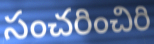
సంచరించిరి